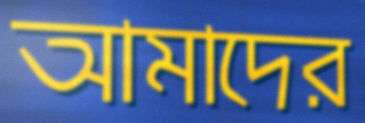
আমাদের